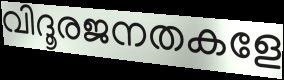
വിദൂരജനതകളേ